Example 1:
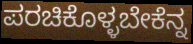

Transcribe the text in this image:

ಪರಚಿಕೊಳ್ಳಬೇಕೆನ್ನ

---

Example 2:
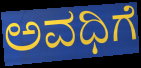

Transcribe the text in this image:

ಅವಧಿಗೆ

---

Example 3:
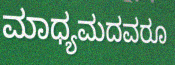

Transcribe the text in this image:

ಮಾಧ್ಯಮದವರೂ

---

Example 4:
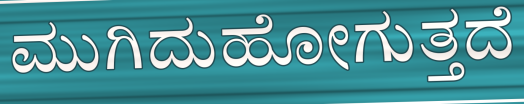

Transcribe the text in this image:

ಮುಗಿದುಹೋಗುತ್ತದೆ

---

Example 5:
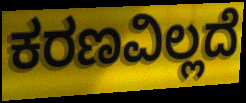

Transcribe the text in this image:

ಕರಣವಿಲ್ಲದೆ